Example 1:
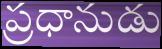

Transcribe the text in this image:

ప్రధానుడు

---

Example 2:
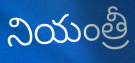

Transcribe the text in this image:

నియంత్రీ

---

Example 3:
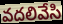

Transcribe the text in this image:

వదలివేసి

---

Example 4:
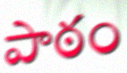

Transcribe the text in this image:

పాఠం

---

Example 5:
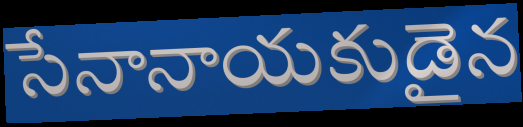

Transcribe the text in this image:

సేనానాయకుడైన